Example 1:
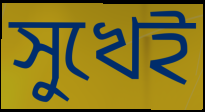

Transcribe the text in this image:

সুখেই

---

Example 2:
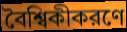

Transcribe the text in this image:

বৈশ্বিকীকরণে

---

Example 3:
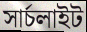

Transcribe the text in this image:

সার্চলাইট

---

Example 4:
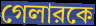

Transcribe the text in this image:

গেলারকে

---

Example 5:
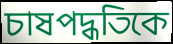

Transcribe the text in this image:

চাষপদ্ধতিকে